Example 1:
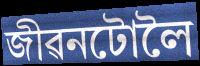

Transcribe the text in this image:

জীৱনটোলৈ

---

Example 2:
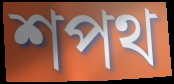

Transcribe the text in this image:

শপথ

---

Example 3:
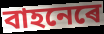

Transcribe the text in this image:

বাহনেৰে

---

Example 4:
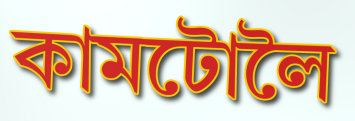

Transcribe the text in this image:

কামটোলৈ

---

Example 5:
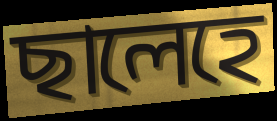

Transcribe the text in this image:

ছালেহে